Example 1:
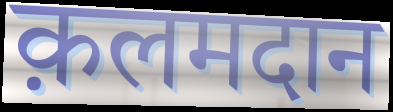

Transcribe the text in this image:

क़लमदान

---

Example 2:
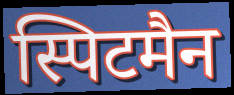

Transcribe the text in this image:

स्पिटमैन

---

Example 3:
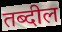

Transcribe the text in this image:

तब्दील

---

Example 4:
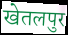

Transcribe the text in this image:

खेतलपुर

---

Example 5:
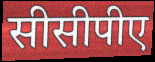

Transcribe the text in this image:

सीसीपीए